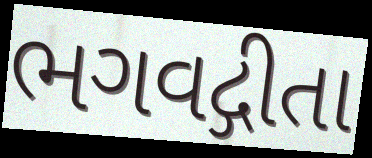
ભગવદ્ગીતા